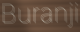
Buranji